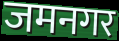
जमनगर